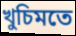
খুচিমতে